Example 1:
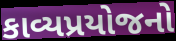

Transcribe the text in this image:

કાવ્યપ્રયોજનો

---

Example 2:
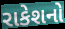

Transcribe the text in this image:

રાકેશનો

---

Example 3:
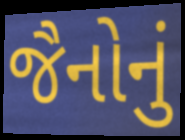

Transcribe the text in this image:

જૈનોનું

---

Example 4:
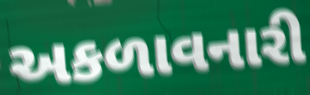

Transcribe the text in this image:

અકળાવનારી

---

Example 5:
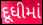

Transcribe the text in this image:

દૂધીમાં